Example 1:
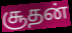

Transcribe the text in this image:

சூதன்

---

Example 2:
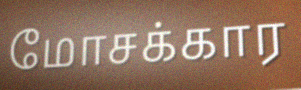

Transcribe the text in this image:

மோசக்கார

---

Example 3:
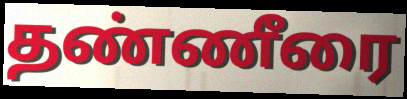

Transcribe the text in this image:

தண்ணீரை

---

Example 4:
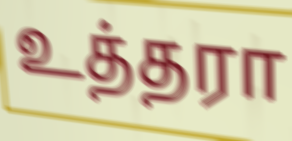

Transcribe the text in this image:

உத்தரா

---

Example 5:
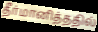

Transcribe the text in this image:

தீர்மானித்ததில்